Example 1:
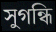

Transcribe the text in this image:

সুগন্ধি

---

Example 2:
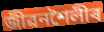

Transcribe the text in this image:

জীৱনশৈলীৰ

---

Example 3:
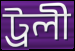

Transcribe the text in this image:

ট্ৰলী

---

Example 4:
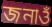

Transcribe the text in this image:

জনাওঁ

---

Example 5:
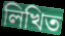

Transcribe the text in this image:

লিখিত